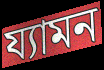
য্যামন